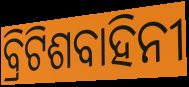
ବ୍ରିଟିଶବାହିନୀ